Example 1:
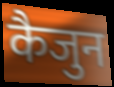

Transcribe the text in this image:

कैजुन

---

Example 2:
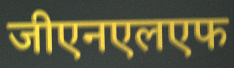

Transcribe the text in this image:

जीएनएलएफ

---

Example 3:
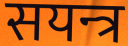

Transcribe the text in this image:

सयन्त्र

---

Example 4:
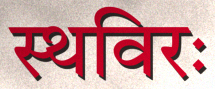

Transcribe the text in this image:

स्थविरः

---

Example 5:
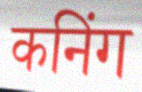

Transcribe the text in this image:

कनिंग